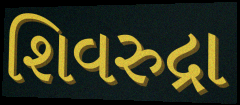
શિવરુદ્રા